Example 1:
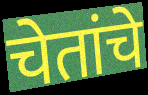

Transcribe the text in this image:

चेतांचे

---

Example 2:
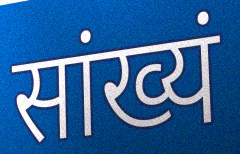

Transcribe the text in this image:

सांख्यं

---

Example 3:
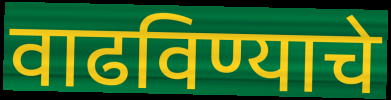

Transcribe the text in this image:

वाढविण्याचे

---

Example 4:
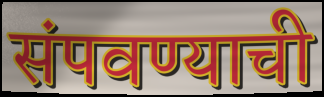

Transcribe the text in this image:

संपवण्याची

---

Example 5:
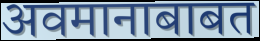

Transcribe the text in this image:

अवमानाबाबत